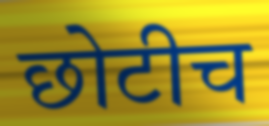
छोटीच